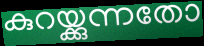
കുറയ്ക്കുന്നതോ